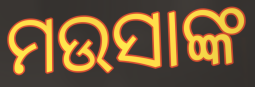
ମଉସାଙ୍କ